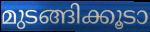
മുടങ്ങിക്കൂടാ